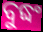
ବୁଦ୍ଧଂ